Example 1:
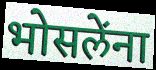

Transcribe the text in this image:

भोसलेंना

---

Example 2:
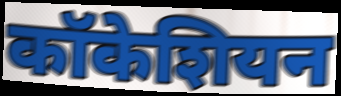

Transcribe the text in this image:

कॉकेशियन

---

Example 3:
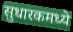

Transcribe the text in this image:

सुधारकमध्ये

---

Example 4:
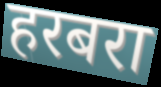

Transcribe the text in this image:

हरबरा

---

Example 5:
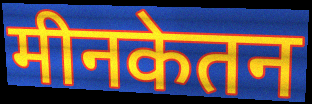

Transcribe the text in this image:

मीनकेतन